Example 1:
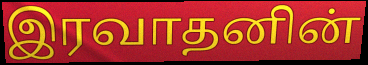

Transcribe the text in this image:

இரவாதனின்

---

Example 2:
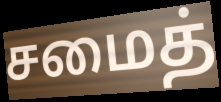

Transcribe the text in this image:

சமைத்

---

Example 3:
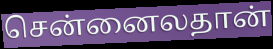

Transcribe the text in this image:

சென்னைலதான்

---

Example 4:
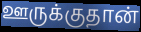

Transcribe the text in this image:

ஊருக்குதான்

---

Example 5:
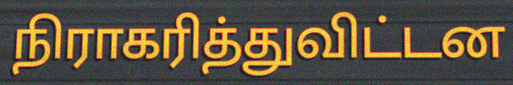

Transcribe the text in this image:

நிராகரித்துவிட்டன